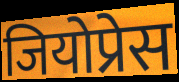
जियोप्रेस